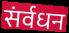
संर्वधन